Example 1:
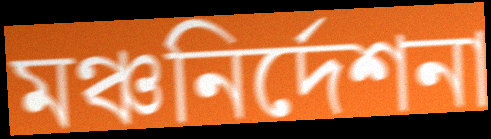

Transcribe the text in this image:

মঞ্চনির্দেশনা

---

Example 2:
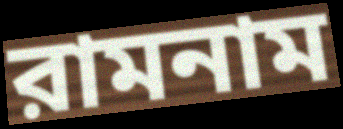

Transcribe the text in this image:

রামনাম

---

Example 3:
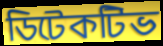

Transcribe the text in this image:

ডিটেকটিভ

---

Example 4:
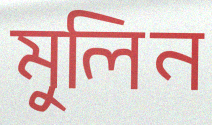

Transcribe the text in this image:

মুলিন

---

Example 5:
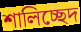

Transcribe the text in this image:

শালিচ্ছেদ